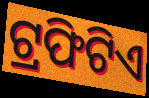
ଟ୍ରଫିଟିଏ